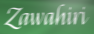
Zawahiri